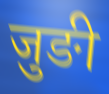
जुङी